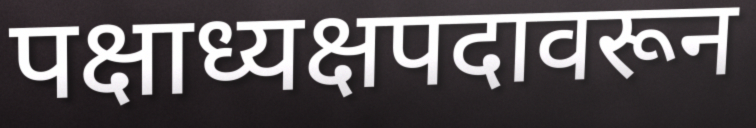
पक्षाध्यक्षपदावरून